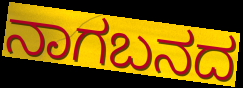
ನಾಗಬನದ